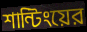
শান্টিংয়ের